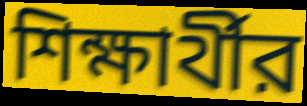
শিক্ষার্থীর